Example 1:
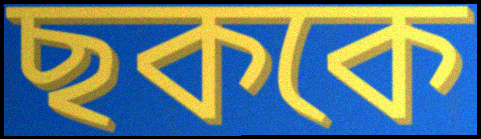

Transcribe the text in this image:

ছককে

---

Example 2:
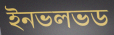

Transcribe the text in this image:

ইনভলভড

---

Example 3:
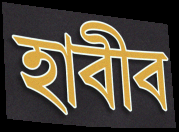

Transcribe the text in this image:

হাবীব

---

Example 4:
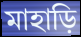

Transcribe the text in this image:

মাহাড়ি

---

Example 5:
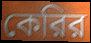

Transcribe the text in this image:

কেরির